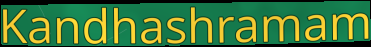
Kandhashramam